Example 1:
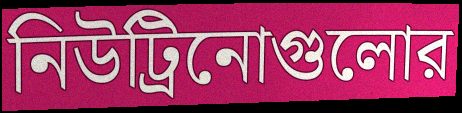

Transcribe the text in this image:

নিউট্রিনোগুলোর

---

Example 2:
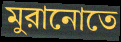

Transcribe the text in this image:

মুরানোতে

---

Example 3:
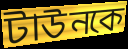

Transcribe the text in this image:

টাউনকে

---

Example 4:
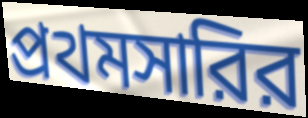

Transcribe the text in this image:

প্রথমসারির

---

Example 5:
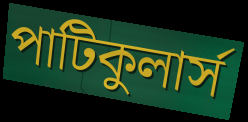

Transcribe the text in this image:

পাটিকুলার্স